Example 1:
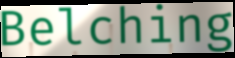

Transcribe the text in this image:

Belching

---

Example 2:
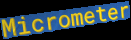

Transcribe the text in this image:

Micrometer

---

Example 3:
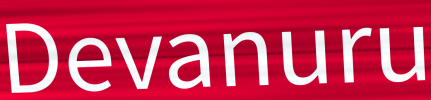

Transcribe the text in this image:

Devanuru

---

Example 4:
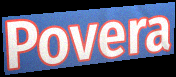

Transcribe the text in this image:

Povera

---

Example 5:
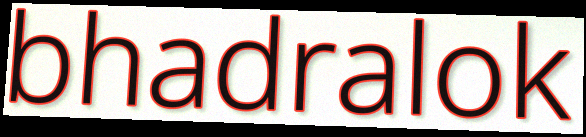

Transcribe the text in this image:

bhadralok